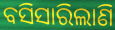
ବସିସାରିଲାଣି